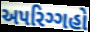
અપરિગ્ગહો